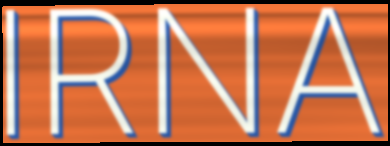
IRNA